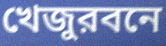
খেজুরবনে